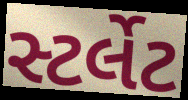
સ્ટર્લેટ